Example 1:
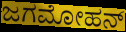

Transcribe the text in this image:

ಜಗಮೋಹನ್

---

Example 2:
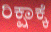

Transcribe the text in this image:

ರಿಕ್ಷಾಕ್ಕೆ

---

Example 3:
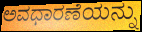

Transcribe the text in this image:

ಅವಧಾರಣೆಯನ್ನು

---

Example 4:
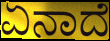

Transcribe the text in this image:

ಏನಾದೆ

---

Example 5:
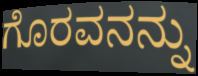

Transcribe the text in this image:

ಗೊರವನನ್ನು